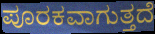
ಪೂರಕವಾಗುತ್ತದೆ